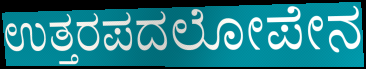
ಉತ್ತರಪದಲೋಪೇನ